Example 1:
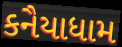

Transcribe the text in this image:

કનૈયાધામ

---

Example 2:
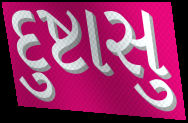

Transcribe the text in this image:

દુષ્ટાસુ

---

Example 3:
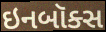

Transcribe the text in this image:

ઇનબૉક્સ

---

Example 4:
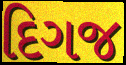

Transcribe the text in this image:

દિગજ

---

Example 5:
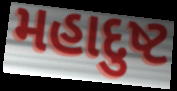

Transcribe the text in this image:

મહાદુષ્ટ